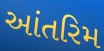
આંતરિમ